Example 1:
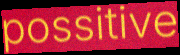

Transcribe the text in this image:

possitive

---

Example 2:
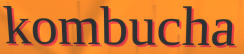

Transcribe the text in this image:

kombucha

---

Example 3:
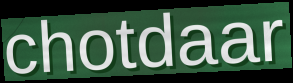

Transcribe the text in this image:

chotdaar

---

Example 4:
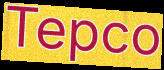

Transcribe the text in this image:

Tepco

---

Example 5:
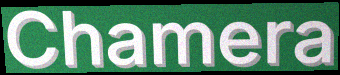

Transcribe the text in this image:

Chamera